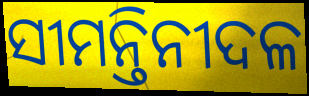
ସୀମନ୍ତିନୀଦଳ